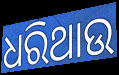
ଧରିଥାଉ